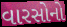
વારસોનો